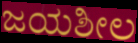
ಜಯಶೀಲ